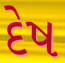
દેષ